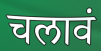
चलावं